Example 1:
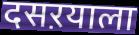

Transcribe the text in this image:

दसऱयाला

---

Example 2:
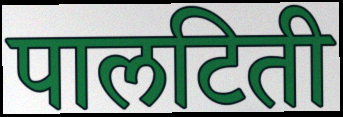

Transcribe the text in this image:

पालटिती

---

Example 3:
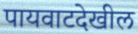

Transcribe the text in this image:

पायवाटदेखील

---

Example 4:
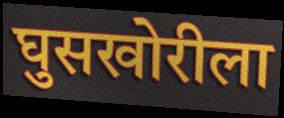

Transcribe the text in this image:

घुसखोरीला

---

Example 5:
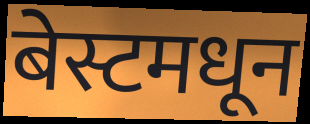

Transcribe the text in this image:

बेस्टमधून